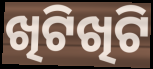
ଖିଟିଖିଟି